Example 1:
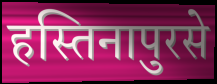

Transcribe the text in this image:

हस्तिनापुरसे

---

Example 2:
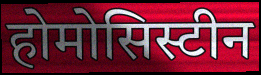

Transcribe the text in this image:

होमोसिस्टीन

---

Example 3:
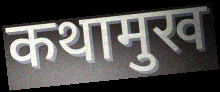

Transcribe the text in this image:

कथामुख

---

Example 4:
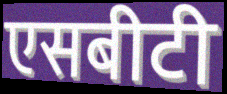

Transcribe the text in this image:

एसबीटी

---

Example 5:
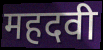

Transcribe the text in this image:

महदवी